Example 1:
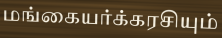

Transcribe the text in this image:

மங்கையர்க்கரசியும்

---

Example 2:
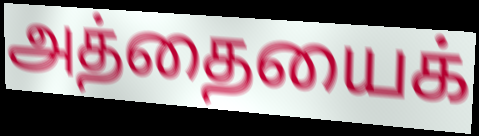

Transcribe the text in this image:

அத்தையைக்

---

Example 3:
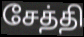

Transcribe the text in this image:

சேத்தி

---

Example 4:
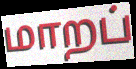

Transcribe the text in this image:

மாறப்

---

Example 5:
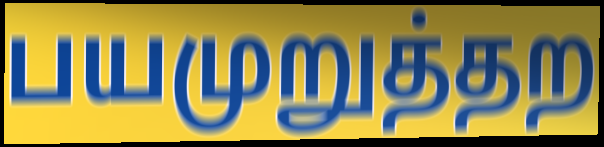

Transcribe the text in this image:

பயமுறுத்தற